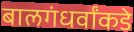
बालगंधर्वांकडे